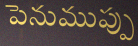
పెనుముప్పు